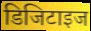
डिजिटाइज